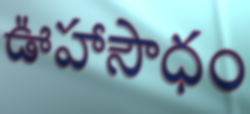
ఊహాసౌధం